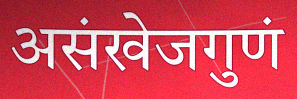
असंखेजगुणं